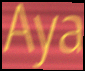
Aya